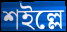
শইল্লে